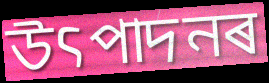
উৎপাদনৰ